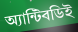
অ্যান্টিবডিই